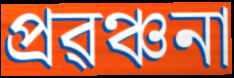
প্ৰৱঞ্চনা